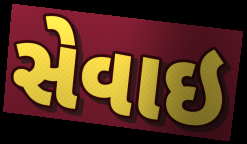
સેવાઇ